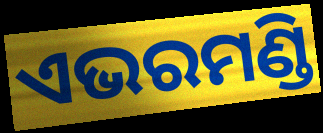
ଏଭରମଣ୍ଡି